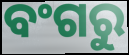
ବଂଗରୁ